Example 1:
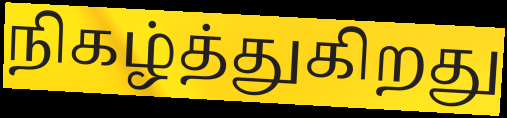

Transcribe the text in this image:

நிகழ்த்துகிறது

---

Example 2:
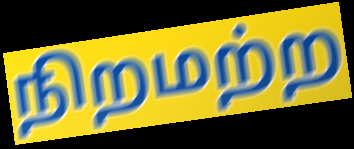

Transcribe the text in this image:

நிறமற்ற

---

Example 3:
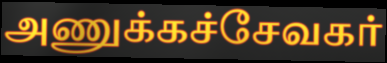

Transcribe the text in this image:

அணுக்கச்சேவகர்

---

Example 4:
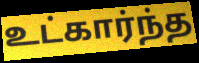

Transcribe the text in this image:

உட்கார்ந்த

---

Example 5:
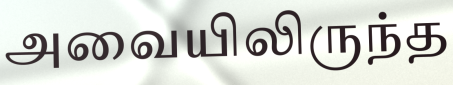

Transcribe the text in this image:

அவையிலிருந்த